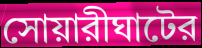
সোয়ারীঘাটের